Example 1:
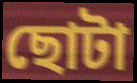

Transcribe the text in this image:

ছোটা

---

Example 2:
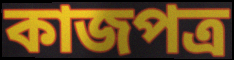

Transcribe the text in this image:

কাজপত্র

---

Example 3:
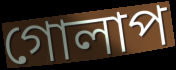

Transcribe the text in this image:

গোলাপ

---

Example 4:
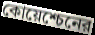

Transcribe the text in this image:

কোয়েশ্চেনের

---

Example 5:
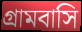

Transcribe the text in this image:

গ্রামবাসি